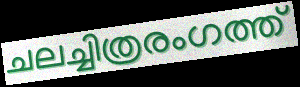
ചലച്ചിത്രരംഗത്ത്